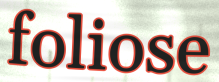
foliose